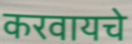
करवायचे